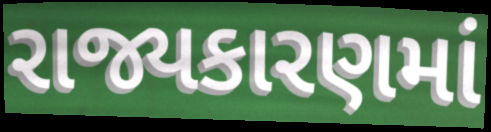
રાજ્યકારણમાં